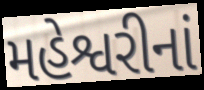
મહેશ્વરીનાં